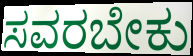
ಸವರಬೇಕು